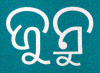
ଜୁନ୍ରୁ